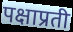
पक्षाप्रती